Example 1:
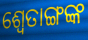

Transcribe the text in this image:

ଶ୍ବେତାଙ୍ଗଙ୍କ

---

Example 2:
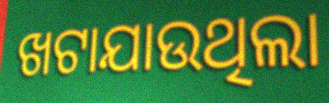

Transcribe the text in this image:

ଖଟାଯାଉଥିଲା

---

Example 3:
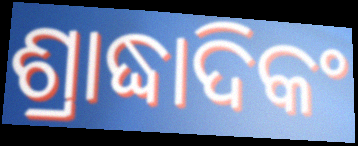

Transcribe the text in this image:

ଶ୍ରାଦ୍ଧାଦିକଂ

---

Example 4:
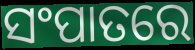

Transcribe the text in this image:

ସଂପାତରେ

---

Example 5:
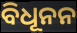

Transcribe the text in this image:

ବିଧୂନନ